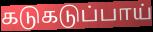
கடுகடுப்பாய்